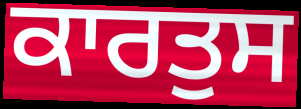
ਕਾਰਤੁਸ